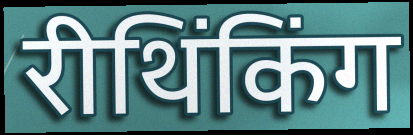
रीथिंकिंग